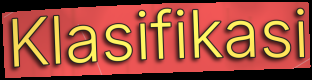
Klasifikasi